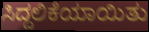
ಸಿದ್ದಲಿಕೆಯಾಯಿತು